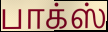
பாக்ஸ்